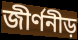
জীর্ণনীড়